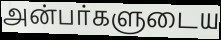
அன்பர்களுடைய